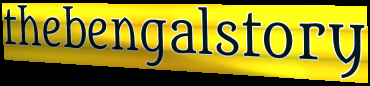
thebengalstory